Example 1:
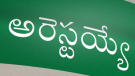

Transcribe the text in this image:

అరెస్టయ్యే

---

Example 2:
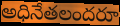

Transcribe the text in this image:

అధినేతలందరూ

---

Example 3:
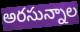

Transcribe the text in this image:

అరసున్నాల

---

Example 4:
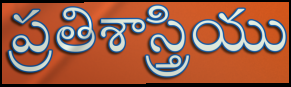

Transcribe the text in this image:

ప్రతిశాస్త్రియు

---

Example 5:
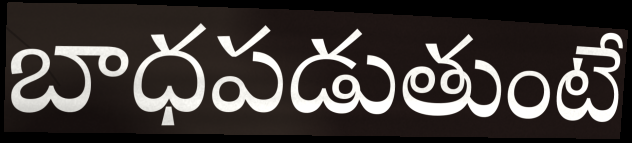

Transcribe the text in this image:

బాధపడుతుంటే